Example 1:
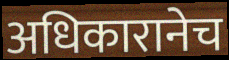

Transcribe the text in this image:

अधिकारानेच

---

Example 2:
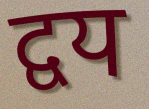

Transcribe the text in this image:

द्वय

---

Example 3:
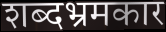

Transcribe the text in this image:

शब्दभ्रमकार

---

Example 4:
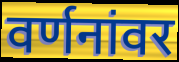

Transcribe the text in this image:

वर्णनांवर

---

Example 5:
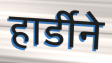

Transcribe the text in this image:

हार्डीने